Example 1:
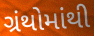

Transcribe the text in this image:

ગ્રંથોમાંથી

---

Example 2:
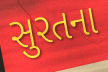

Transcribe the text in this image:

સુરતના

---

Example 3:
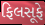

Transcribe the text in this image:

ફિલસૂફે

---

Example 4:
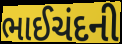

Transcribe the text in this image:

ભાઈચંદની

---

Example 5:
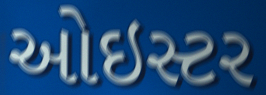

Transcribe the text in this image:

ઓઇસ્ટર